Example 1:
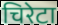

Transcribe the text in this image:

चिरेटा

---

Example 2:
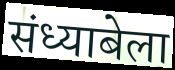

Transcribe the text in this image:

संध्याबेला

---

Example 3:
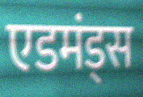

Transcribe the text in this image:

एडमंड्स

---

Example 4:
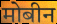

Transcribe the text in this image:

मोबीन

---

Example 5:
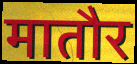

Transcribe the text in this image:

मातौर